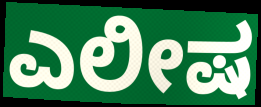
ಎಲೀಷ